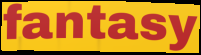
fantasy